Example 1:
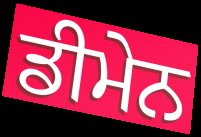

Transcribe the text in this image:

ਡੀਮੇਨ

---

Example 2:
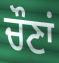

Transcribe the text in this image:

ਚੌਣਾਂ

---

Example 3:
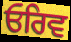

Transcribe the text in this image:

ਓਰਿਵ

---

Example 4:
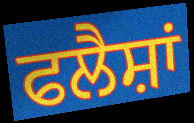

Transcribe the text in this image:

ਫਲੈਸ਼ਾਂ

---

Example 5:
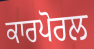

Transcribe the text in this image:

ਕਾਰਪੋਰਲ